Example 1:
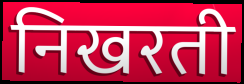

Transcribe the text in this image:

निखरती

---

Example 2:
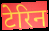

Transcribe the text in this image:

टेरिन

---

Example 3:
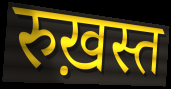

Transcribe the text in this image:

रुख़स्त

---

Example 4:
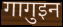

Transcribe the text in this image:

गागुइन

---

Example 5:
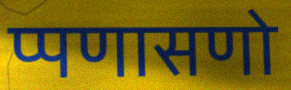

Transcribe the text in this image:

प्पणासणो